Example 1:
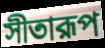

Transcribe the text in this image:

সীতারূপ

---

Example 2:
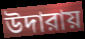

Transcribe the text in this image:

উদারায়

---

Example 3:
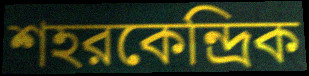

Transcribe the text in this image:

শহরকেন্দ্রিক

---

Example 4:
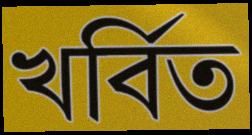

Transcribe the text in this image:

খর্বিত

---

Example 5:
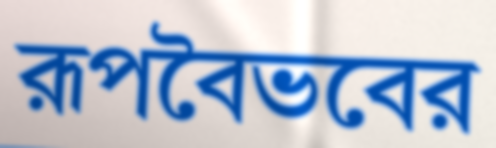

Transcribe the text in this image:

রূপবৈভবের